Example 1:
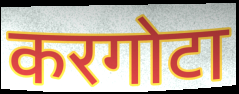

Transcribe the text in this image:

करगोटा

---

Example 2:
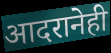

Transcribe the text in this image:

आदरानेही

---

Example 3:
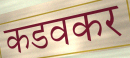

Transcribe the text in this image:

कडवकर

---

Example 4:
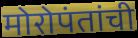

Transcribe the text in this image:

मोरोपंतांची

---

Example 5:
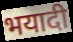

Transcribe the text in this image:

भयादी